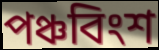
পঞ্চবিংশ